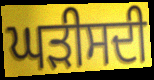
ਘੜੀਸਦੀ